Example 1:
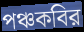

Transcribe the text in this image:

পঞ্চকবির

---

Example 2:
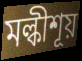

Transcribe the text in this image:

মল্কীশূয়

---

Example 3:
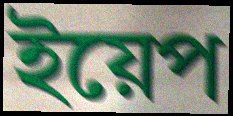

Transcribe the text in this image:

ইয়েপ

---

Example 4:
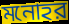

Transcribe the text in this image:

মনোহর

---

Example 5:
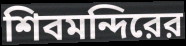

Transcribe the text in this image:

শিবমন্দিরের